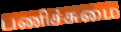
பணிச்சுமை